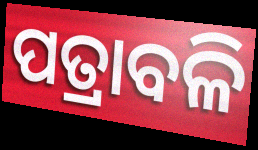
ପତ୍ରାବଳି